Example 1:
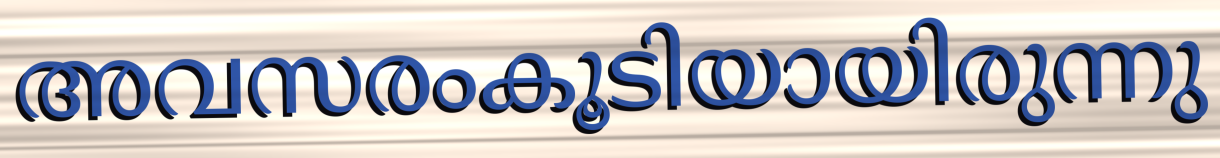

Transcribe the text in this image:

അവസരംകൂടിയായിരുന്നു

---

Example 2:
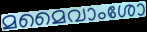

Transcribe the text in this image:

മമൈവാംശോ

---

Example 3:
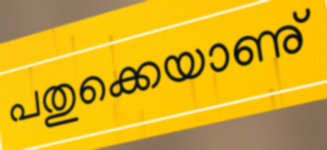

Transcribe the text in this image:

പതുക്കെയാണു്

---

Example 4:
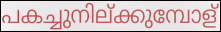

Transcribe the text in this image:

പകച്ചുനില്ക്കുമ്പോള്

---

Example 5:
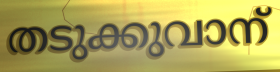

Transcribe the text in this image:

തടുക്കുവാന്